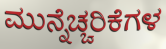
ಮುನ್ನೆಚ್ಚರಿಕೆಗಳ